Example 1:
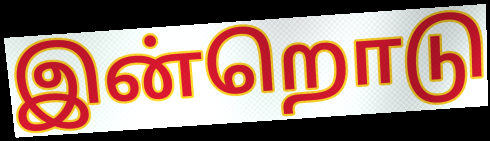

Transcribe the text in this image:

இன்றொடு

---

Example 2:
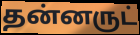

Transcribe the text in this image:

தன்னருட்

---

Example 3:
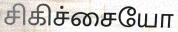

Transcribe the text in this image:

சிகிச்சையோ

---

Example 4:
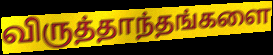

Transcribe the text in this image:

விருத்தாந்தங்களை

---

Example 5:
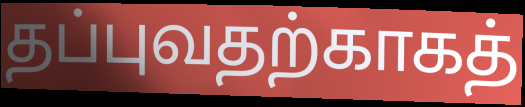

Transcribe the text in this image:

தப்புவதற்காகத்